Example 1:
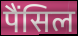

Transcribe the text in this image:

पैंसिल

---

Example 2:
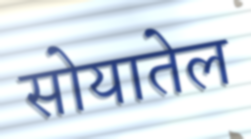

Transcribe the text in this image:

सोयातेल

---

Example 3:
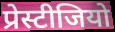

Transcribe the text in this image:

प्रेस्टीजियो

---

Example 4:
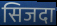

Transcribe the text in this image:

सिजदा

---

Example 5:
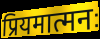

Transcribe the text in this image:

प्रियमात्मनः